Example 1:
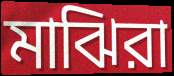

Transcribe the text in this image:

মাঝিরা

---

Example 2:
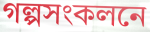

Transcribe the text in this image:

গল্পসংকলনে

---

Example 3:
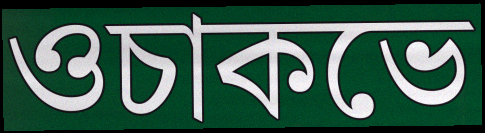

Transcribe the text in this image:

ওচাকভে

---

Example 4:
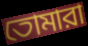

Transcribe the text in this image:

তোমারা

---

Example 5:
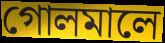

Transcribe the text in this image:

গোলমালে